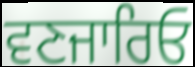
ਵਣਜਾਰਿਓ